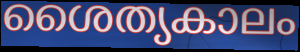
ശൈത്യകാലം